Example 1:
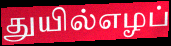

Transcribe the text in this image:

துயில்எழப்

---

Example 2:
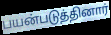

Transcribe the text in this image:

பயன்படுத்தினார்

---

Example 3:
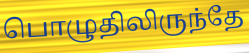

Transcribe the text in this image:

பொழுதிலிருந்தே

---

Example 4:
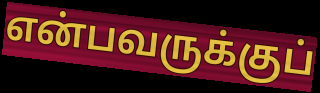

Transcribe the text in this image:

என்பவருக்குப்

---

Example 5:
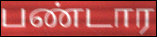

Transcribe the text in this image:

பண்டார